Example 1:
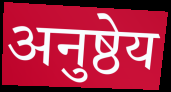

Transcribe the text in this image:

अनुष्ठेय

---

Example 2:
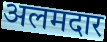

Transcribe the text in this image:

अलमदार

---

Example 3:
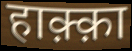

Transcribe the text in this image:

हाक़्क़ा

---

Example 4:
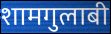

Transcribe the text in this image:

शामगुलाबी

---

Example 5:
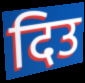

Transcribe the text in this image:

दिउ